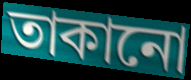
তাকানো